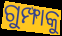
ଗୁମ୍ଫାକୁ